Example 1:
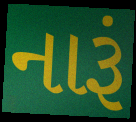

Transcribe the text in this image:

નારૂં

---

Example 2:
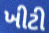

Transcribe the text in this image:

ખીટી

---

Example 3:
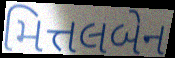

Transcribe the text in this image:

મિત્તલબેન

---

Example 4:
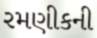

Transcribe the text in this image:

રમણીકની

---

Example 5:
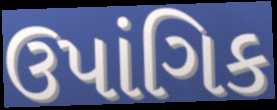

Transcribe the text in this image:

ઉપાંગિક